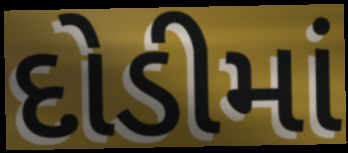
દોડીમાં